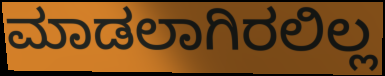
ಮಾಡಲಾಗಿರಲಿಲ್ಲ